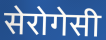
सेरोगेसी